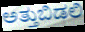
ಅತ್ತುಬಿಡಲಿ